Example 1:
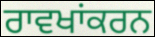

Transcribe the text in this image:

ਰਾਵਖਾਂਕਰਨ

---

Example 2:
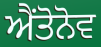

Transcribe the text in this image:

ਐਂਤੋਨੋਵ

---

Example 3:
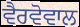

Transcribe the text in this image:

ਵੈਰਵੋਵਾਲ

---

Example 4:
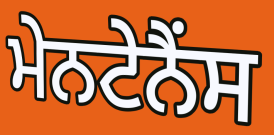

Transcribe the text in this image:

ਮੇਨਟੇਨੈਂਸ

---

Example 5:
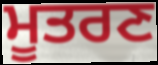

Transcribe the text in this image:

ਮੂਤਰਣ